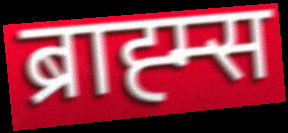
ब्राह्म्स